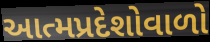
આત્મપ્રદેશોવાળો